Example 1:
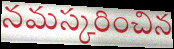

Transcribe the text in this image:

నమస్కరించిన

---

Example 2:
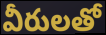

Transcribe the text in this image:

వీరులతో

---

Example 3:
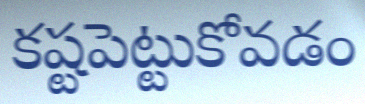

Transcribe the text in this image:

కష్టపెట్టుకోవడం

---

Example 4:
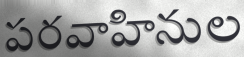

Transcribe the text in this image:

పరవాహినుల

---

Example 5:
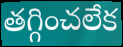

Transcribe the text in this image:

తగ్గించలేక